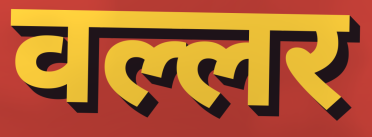
वल्लर